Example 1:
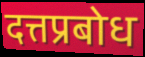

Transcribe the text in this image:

दत्तप्रबोध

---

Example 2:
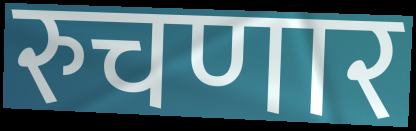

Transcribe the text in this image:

रुचणार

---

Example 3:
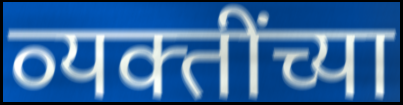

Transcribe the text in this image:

व्‍यक्‍तींच्‍या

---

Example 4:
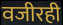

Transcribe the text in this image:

वजीरही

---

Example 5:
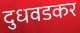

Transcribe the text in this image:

दुधवडकर